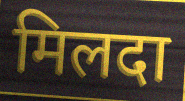
मिलदा